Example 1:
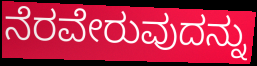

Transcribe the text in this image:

ನೆರವೇರುವುದನ್ನು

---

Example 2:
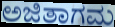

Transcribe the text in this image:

ಅಜಿತಾಗಮ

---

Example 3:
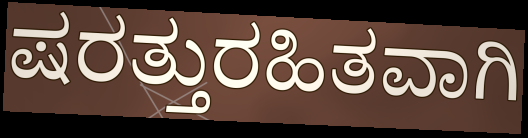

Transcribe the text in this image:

ಷರತ್ತುರಹಿತವಾಗಿ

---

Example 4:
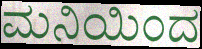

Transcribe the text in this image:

ಮನಿಯಿಂದ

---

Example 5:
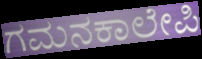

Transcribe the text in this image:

ಗಮನಕಾಲೇಪಿ